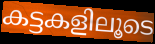
കട്ടകളിലൂടെ